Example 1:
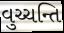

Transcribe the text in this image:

વુચ્ચન્તિ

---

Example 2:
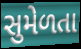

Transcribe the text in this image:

સુમેળતા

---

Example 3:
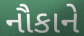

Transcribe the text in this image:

નૌકાને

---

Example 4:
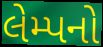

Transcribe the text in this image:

લેમ્પનો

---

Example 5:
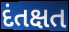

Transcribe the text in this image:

દંતક્ષત